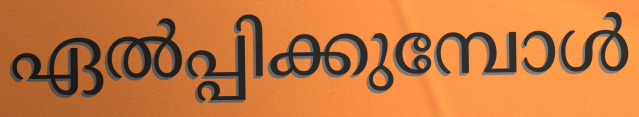
ഏൽപ്പിക്കുമ്പോൾ